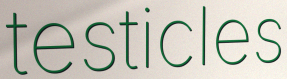
testicles